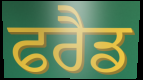
ਫਰੈਡ